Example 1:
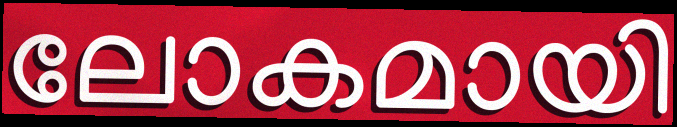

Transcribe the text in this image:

ലോകമായി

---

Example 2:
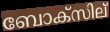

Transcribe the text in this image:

ബോക്സില്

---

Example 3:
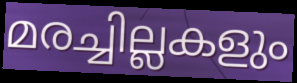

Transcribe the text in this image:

മരച്ചില്ലകളും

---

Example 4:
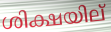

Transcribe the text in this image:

ശിക്ഷയില്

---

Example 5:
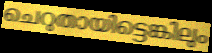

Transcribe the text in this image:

ചെറുതായിട്ടെങ്കിലും